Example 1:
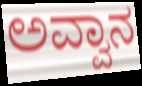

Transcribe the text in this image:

ಅವ್ವಾನ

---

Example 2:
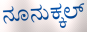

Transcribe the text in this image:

ನೂನುಕ್ಕಲ್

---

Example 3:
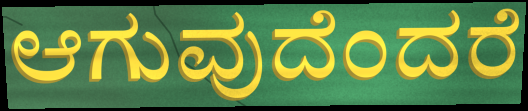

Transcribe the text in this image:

ಆಗುವುದೆಂದರೆ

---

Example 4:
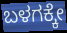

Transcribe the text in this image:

ಬಳಗಕ್ಕೇ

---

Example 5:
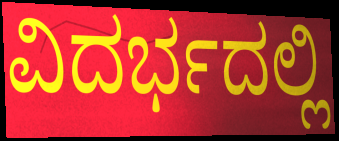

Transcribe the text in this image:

ವಿದರ್ಭದಲ್ಲಿ